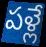
పళ్లే